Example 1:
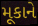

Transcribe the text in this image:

મૂકાને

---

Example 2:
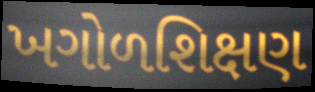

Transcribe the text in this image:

ખગોળશિક્ષણ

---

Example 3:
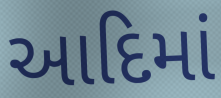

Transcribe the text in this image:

આદિમાં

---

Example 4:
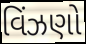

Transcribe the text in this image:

વિંઝણો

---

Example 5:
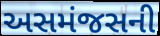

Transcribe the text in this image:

અસમંજસની